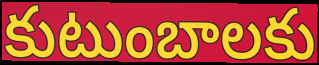
కుటుంబాలకు